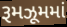
રૂમઝૂમમાં